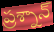
ప్రశ్నాన్